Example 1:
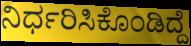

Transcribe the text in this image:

ನಿರ್ಧರಿಸಿಕೊಂಡಿದ್ದೆ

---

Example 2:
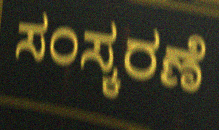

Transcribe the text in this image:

ಸಂಸ್ಕರಣೆ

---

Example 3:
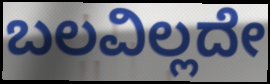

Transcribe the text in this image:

ಬಲವಿಲ್ಲದೇ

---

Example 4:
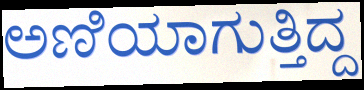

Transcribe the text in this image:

ಅಣಿಯಾಗುತ್ತಿದ್ದ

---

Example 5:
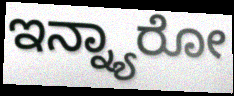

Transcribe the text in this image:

ಇನ್ನ್ಯಾರೋ